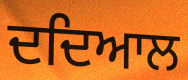
ਦਦਿਆਲ